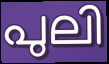
പുലി